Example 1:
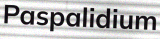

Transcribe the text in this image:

Paspalidium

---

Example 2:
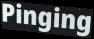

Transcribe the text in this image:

Pinging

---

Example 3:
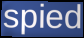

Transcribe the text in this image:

spied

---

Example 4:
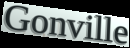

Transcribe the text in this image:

Gonville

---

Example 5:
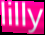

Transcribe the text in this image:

lilly